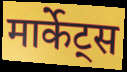
मार्केट्स